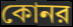
কোনর